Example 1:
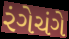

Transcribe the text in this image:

રંગેચંગે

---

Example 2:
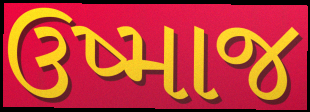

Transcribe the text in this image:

ઉષ્માજ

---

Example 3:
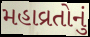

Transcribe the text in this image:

મહાવ્રતોનું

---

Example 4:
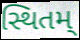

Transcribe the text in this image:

સ્થિતમ્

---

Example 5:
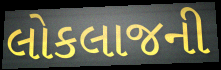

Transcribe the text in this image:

લોકલાજની